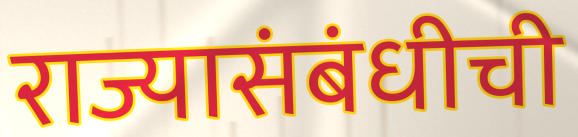
राज्यासंबंधीची